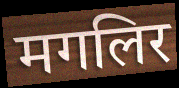
मगलिर